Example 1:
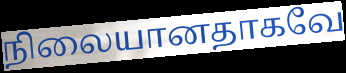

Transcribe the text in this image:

நிலையானதாகவே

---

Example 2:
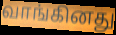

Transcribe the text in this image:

வாங்கினது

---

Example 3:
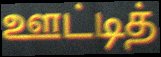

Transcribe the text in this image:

ஊட்டித்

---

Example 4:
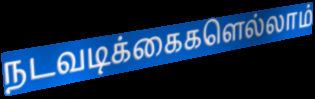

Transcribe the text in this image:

நடவடிக்கைகளெல்லாம்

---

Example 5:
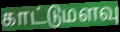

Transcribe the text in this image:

காட்டுமளவு